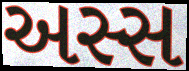
અસ્સ